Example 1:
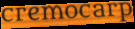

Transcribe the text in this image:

cremocarp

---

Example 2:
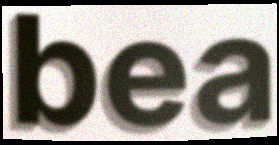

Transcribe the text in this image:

bea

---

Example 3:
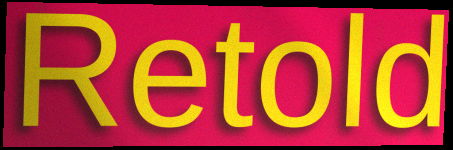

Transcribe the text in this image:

Retold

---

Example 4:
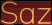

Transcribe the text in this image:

Saz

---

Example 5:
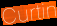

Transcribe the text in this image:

Curtin